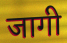
जागी